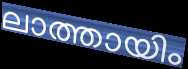
ലാത്തായിം